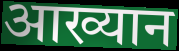
आख्यान